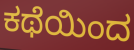
ಕಥೆಯಿಂದ